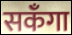
सकँगा